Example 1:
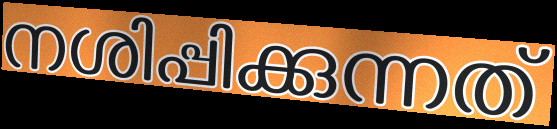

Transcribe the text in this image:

നശിപ്പിക്കുന്നത്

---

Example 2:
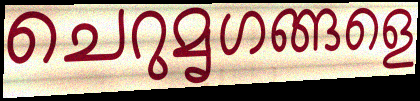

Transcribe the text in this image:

ചെറുമൃഗങ്ങളെ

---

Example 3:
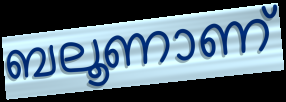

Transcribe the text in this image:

ബലൂണാണ്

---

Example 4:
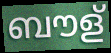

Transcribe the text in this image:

ബൗള്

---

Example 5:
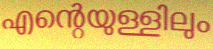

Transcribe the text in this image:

എന്റെയുള്ളിലും